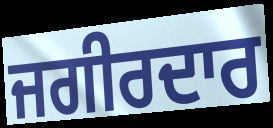
ਜਗੀਰਦਾਰ